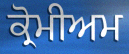
ਕ੍ਰੋਮੀਅਮ